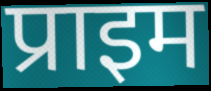
प्राइम